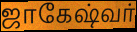
ஜாகேஷ்வர்